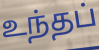
உந்தப்